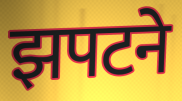
झपटने